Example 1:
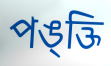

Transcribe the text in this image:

পঙ্‌ক্তি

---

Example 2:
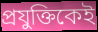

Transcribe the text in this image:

প্রযুক্তিকেই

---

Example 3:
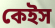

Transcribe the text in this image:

কেইস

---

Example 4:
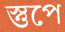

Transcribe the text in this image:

স্তুপে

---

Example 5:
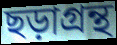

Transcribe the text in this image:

ছড়াগ্রন্থ